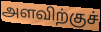
அளவிற்குச்